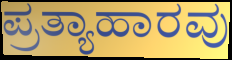
ಪ್ರತ್ಯಾಹಾರವು